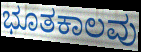
ಭೂತಕಾಲವು